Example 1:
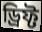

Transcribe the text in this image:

ড্রিফ্ট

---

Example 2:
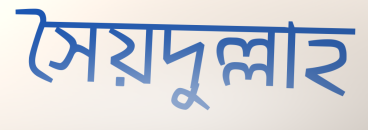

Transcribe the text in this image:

সৈয়দুল্লাহ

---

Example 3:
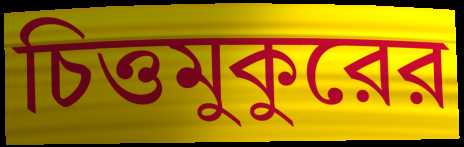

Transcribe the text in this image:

চিত্তমুকুরের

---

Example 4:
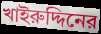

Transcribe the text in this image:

খাইরুদ্দিনের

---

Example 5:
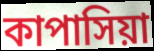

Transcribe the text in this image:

কাপাসিয়া